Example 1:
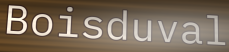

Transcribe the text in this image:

Boisduval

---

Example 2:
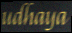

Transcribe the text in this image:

udhaya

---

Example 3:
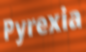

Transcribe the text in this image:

Pyrexia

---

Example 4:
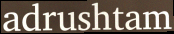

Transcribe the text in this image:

adrushtam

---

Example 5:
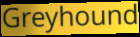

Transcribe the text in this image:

Greyhound